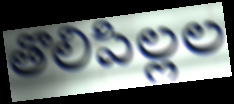
తొలిపిల్లల